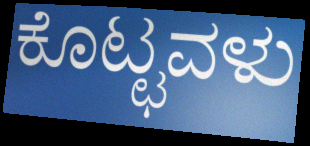
ಕೊಟ್ಟವಳು